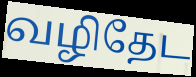
வழிதேட